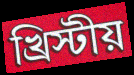
খ্রিস্টীয়